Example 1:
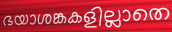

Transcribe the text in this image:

ഭയാശങ്കകളില്ലാതെ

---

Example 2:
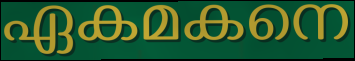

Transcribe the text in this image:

ഏകമകനെ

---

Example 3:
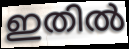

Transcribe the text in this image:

ഇതിൽ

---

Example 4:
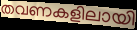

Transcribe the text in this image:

തവണകളിലായി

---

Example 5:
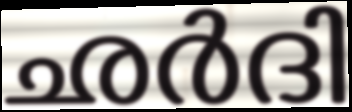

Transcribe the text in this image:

ഛർദി